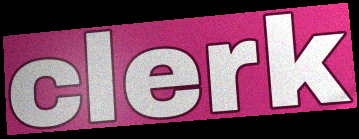
clerk